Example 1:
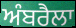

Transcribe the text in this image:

ਅੰਬਰੈਲਾ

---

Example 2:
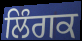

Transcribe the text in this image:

ਲਿੰਗਕ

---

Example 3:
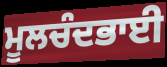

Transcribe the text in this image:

ਮੂਲਚੰਦਭਾਈ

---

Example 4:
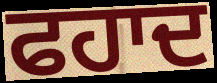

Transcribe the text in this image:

ਫਹਾਦ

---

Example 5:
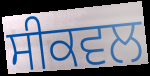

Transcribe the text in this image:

ਸੀਕਵਲ